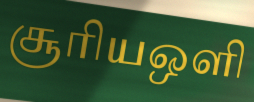
சூரியஒளி